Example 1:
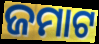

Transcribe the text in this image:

ଜମାଟ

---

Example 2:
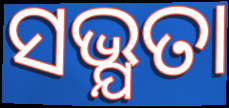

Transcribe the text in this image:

ସଭ୍ଯତା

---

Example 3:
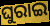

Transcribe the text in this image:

ଘୁରାଇ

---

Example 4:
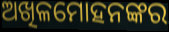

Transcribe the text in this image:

ଅଖିଳମୋହନଙ୍କର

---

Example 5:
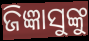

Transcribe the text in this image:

ଜିଜ୍ଞାସୁଙ୍କୁ